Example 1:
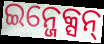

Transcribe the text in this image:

ଇନ୍ଜେକ୍ସନ୍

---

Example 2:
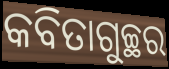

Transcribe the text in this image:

କବିତାଗୁଚ୍ଛର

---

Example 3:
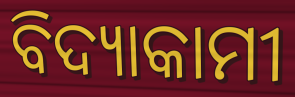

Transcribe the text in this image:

ବିଦ୍ୟାକାମୀ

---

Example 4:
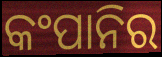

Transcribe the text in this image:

କଂପାନିର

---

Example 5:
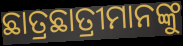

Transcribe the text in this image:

ଛାତ୍ରଛାତ୍ରୀମାନଙ୍କୁ